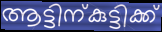
ആട്ടിന്കുട്ടിക്ക്